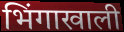
भिंगाखाली